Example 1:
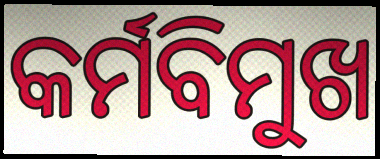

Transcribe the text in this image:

କର୍ମବିମୁଖ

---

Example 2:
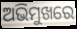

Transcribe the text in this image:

ଅଭିମୁଖରେ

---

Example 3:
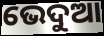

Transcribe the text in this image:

ଭେଦୁଆ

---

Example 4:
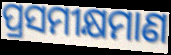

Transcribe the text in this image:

ପ୍ରସମୀକ୍ଷମାଣ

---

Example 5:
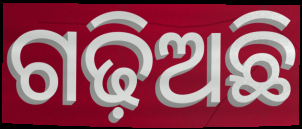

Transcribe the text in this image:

ଗଢ଼ିଅଛି